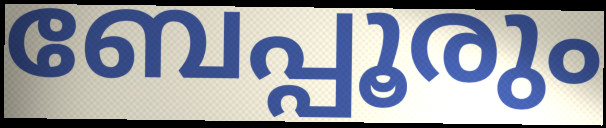
ബേപ്പൂരും